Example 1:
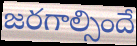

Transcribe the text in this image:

జరగాల్సిందే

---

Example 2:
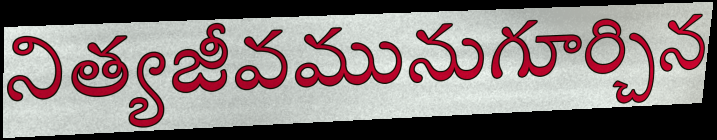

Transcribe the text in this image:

నిత్యజీవమునుగూర్చిన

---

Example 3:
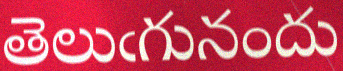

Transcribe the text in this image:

తెలుఁగునందు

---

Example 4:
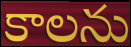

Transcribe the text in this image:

కాలను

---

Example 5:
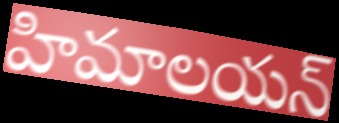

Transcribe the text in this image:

హిమాలయన్